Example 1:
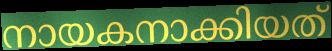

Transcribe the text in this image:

നായകനാക്കിയത്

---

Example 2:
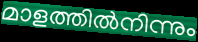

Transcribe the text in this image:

മാളത്തിൽനിന്നും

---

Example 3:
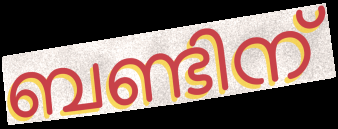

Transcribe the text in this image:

ബണ്ടിന്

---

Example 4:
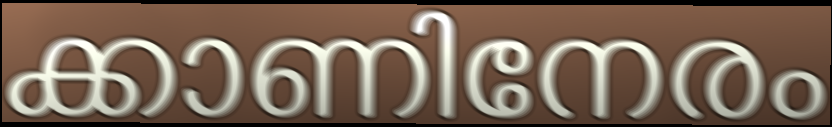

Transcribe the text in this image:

ക്കാണിനേരം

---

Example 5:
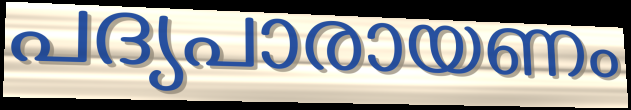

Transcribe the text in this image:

പദ്യപാരായണം